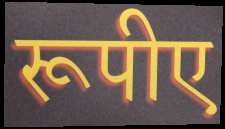
रूपीए